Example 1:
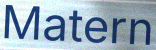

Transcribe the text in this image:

Matern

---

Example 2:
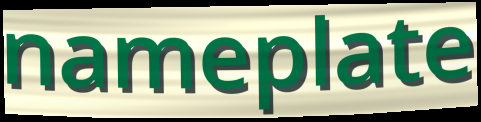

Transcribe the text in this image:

nameplate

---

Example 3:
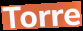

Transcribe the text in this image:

Torre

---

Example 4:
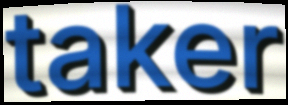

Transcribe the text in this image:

taker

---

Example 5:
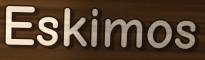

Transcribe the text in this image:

Eskimos